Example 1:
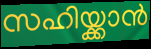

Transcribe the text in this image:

സഹിയ്ക്കാൻ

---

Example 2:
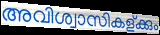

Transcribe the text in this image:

അവിശ്വാസികള്ക്കും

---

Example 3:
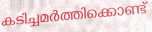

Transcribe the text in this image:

കടിച്ചമർത്തിക്കൊണ്ട്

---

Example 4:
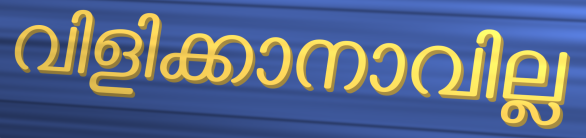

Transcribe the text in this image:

വിളിക്കാനാവില്ല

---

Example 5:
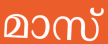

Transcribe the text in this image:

മാസ്